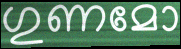
ഗുണമോ